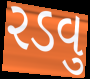
રડવુ